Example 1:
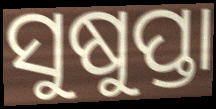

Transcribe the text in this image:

ସୁଷୁପ୍ତା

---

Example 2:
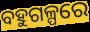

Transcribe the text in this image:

ବହୁଗଳ୍ପରେ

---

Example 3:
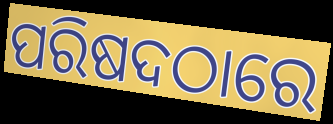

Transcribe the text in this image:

ପରିଷଦଠାରେ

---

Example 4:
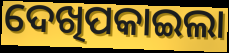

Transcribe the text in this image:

ଦେଖିପକାଇଲା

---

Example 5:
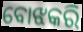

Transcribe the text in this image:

ବୋଝକରି